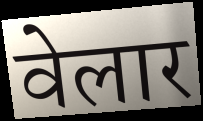
वेलार